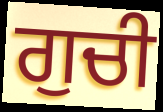
ਗੁਚੀ